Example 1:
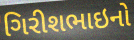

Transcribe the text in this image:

ગિરીશભાઇનો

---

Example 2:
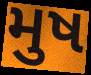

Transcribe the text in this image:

મુષ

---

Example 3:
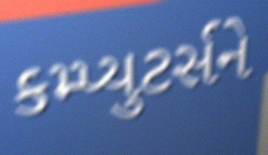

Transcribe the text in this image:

કમ્પ્યુટર્સને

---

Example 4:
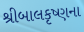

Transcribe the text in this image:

શ્રીબાલકૃષ્ણના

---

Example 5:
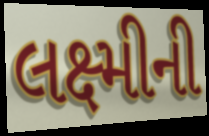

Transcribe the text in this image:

લક્ષ્મીની